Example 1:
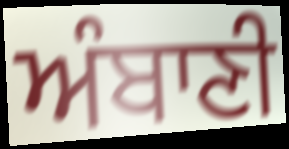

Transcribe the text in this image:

ਅੰਬਾਣੀ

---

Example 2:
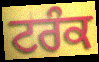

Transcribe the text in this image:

ਟਰੰਕ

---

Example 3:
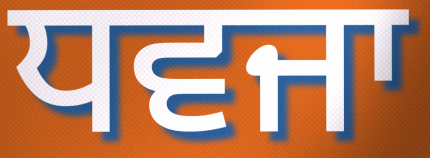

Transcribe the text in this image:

ਧਵਜਾ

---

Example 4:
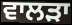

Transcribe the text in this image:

ਵਾਲੜਾ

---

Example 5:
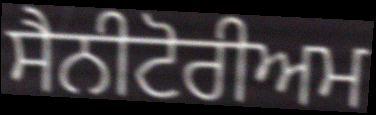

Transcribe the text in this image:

ਸੈਨੀਟੋਰੀਅਮ